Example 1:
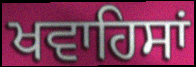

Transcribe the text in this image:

ਖਵਾਹਿਸਾਂ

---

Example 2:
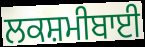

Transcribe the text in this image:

ਲਕਸ਼ਮੀਬਾਈ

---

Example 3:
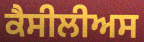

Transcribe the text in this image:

ਕੈਸੀਲੀਅਸ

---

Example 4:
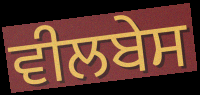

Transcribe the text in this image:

ਵੀਲਬੇਸ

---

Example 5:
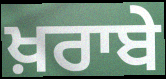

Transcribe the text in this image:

ਖ਼ਰਾਬੇ